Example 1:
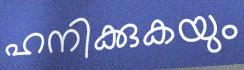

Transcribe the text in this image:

ഹനിക്കുകയും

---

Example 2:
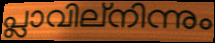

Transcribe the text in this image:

പ്ലാവില്നിന്നും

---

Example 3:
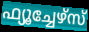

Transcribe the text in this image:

ഫ്യൂച്ചേഴ്സ്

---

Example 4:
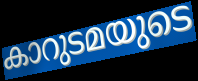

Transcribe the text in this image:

കാറുടമയുടെ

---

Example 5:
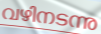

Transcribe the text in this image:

വഴിനടന്നു